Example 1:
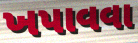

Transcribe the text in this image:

ખપાવવા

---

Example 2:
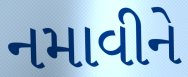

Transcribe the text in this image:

નમાવીને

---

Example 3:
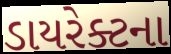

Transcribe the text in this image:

ડાયરેક્ટના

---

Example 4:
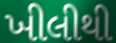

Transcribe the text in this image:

ખીલીથી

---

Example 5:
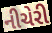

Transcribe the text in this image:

નીચેરી